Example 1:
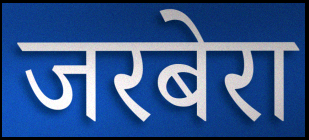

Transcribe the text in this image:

जरबेरा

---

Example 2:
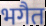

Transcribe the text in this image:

भगैत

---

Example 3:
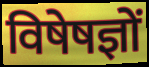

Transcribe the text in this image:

विषेषज्ञों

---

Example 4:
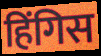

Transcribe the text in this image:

हिंगिस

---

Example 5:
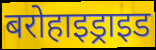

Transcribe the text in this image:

बरोहाइड्राइड